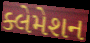
ક્લેમેશન